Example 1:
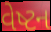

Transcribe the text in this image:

વેષ્ટન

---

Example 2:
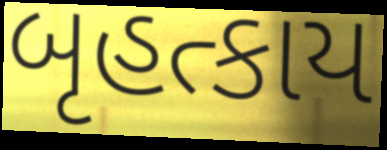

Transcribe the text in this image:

બૃહત્કાય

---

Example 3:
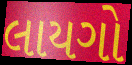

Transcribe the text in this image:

લાયગો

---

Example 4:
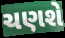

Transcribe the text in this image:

ચણશે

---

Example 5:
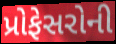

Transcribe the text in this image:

પ્રોફેસરોની